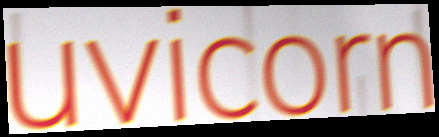
uvicorn